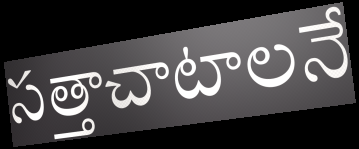
సత్తాచాటాలనే